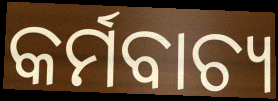
କର୍ମବାଚ୍ୟ